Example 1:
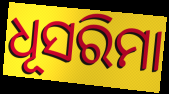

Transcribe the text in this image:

ଧୂସରିମା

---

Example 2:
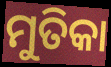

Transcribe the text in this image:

ମୁତିକା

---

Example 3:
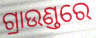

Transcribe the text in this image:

ଗ୍ରାଉଣ୍ଡରେ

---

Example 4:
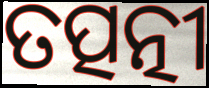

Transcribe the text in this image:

ତତ୍ପତ୍ନୀ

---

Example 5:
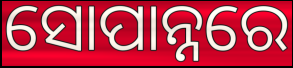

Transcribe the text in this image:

ସୋପାନ୍ନରେ